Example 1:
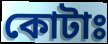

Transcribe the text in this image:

কোটাঃ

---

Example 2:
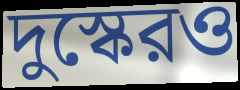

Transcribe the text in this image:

দুস্কেরও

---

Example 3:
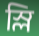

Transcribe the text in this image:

স্লি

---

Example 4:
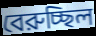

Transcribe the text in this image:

বেরুচ্ছিল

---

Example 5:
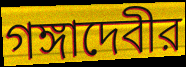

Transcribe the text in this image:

গঙ্গাদেবীর